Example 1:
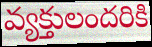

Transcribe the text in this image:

వ్యక్తులందరికి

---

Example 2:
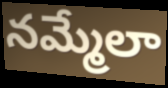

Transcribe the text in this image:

నమ్మేలా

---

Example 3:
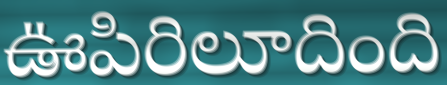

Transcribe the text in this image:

ఊపిరిలూదింది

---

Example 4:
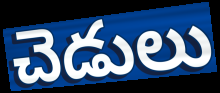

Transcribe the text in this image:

చెడులు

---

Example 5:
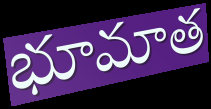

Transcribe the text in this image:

భూమాత